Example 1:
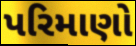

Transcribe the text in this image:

પરિમાણો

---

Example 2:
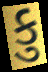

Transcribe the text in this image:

કુ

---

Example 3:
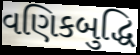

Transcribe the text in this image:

વણિકબુદ્ધિ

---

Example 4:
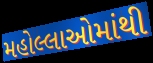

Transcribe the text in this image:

મહોલ્લાઓમાંથી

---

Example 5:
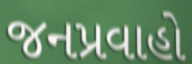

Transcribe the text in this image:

જનપ્રવાહો